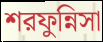
শরফুন্নিসা